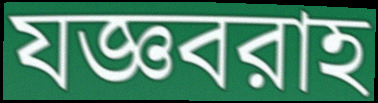
যজ্ঞবরাহ